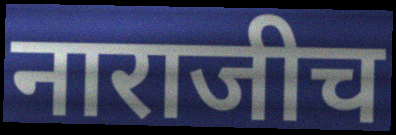
नाराजीच